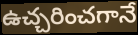
ఉచ్చరించగానే